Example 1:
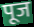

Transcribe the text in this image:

पूज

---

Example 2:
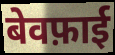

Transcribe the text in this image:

बेवफ़ाई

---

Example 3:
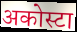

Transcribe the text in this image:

अकोस्टा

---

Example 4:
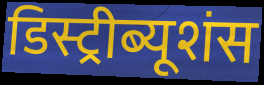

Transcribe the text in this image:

डिस्ट्रीब्यूशंस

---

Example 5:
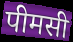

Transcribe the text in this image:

पीमसी